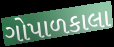
ગોપાળકાલા